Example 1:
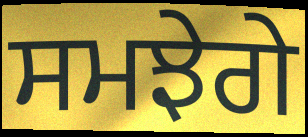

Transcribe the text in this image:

ਸਮਝੇਗੇ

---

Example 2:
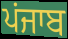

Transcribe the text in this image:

ਪਂਜਾਬ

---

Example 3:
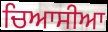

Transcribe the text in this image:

ਚਿਆਸੀਆ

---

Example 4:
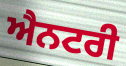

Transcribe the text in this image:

ਐਨਟਰੀ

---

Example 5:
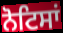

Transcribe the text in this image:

ਨੋਟਿਸਾਂ